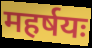
महर्षयः